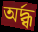
অর্দ্ধ্ব